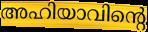
അഹിയാവിന്റെ